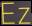
Ez